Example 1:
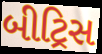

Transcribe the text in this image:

બીટ્રિસ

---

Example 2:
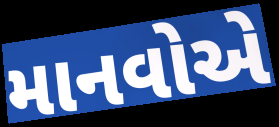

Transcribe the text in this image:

માનવોએ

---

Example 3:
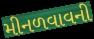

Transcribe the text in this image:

મીનળવાવની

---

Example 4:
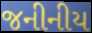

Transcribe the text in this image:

જનીનીય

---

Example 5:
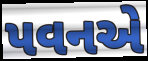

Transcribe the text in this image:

પવનએ